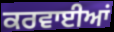
ਕਰਵਾਈਆਂ